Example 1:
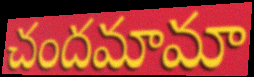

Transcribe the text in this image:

చందమామా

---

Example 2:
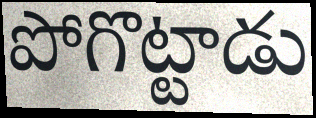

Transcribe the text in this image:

పోగొట్టాడు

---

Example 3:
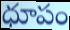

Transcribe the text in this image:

ధూపం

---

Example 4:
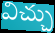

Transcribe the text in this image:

విచ్చు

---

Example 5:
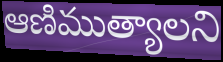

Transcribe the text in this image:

ఆణిముత్యాలని